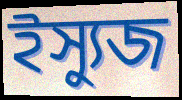
ইস্যুজ